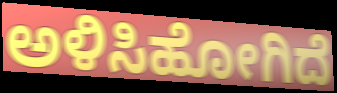
ಅಳಿಸಿಹೋಗಿದೆ